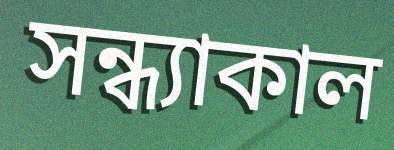
সন্ধ্যাকাল